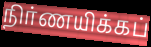
நிர்ணயிக்கப்